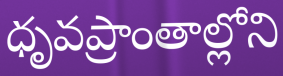
ధృవప్రాంతాల్లోని